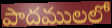
పాదములలో